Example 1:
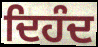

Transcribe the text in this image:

ਦਿਹੰਦ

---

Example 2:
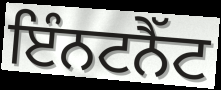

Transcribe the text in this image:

ਇੰਨਟਨੈੱਟ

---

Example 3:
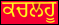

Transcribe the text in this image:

ਕਚਲਹੂ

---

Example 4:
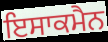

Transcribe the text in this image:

ਇਸਾਕਮੈਨ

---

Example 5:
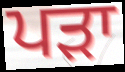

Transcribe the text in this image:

ਪੜਾ